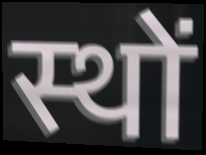
स्थों